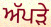
ਅੱਪੜੇ